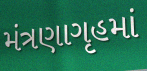
મંત્રણાગૃહમાં